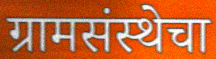
ग्रामसंस्थेचा